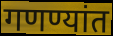
गणण्यांत